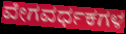
ವೇಗವರ್ಧಕಗಳ